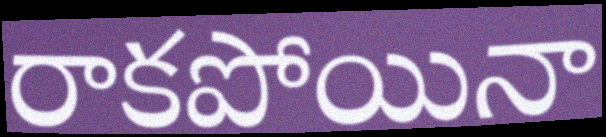
రాకపోయినా